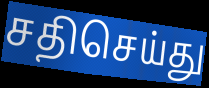
சதிசெய்து